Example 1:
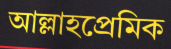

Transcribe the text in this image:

আল্লাহপ্রেমিক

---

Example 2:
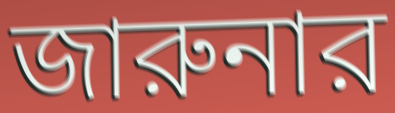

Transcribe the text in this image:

জারুনার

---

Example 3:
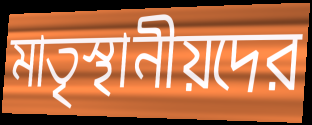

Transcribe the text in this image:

মাতৃস্থানীয়দের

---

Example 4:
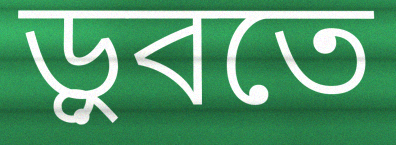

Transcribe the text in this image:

ড়ুবতে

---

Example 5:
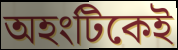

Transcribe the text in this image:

অহংটিকেই